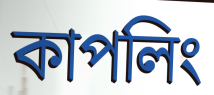
কাপলিং